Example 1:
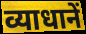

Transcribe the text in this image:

व्याधानें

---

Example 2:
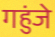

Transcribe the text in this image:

गहुंजे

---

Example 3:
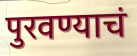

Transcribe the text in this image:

पुरवण्याचं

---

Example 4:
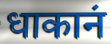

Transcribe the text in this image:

धाकानं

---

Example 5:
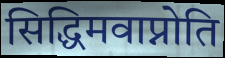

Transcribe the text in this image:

सिद्धिमवाप्नोति